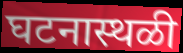
घटनास्थळी